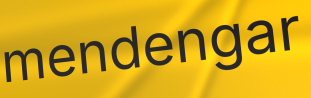
mendengar